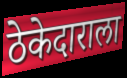
ठेकेदाराला